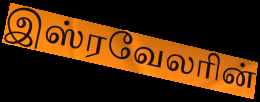
இஸ்ரவேலரின்